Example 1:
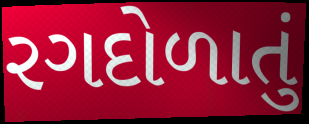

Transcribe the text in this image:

રગદોળાતું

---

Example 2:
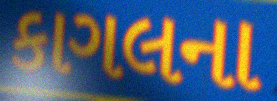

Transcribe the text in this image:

કાગલના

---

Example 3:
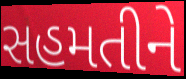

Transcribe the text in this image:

સહમતીને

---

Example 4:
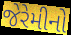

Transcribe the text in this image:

જેરેમીનો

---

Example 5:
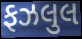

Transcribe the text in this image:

ફઝલુલ